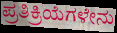
ಪ್ರತಿಕ್ರಿಯೆಗಳೇನು